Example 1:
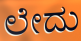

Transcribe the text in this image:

ಲೇದು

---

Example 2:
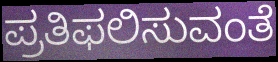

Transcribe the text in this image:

ಪ್ರತಿಫಲಿಸುವಂತೆ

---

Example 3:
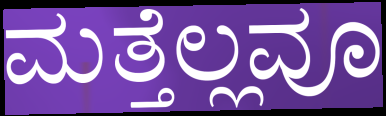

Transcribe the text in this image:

ಮತ್ತೆಲ್ಲವೂ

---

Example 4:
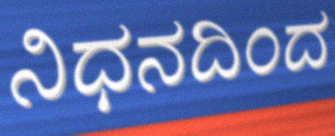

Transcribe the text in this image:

ನಿಧನದಿಂದ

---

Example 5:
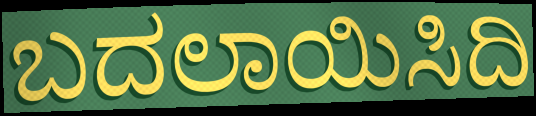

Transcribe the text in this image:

ಬದಲಾಯಿಸಿದಿ